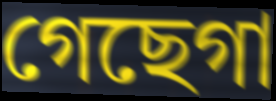
গেছেগা